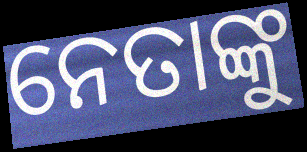
ନେତାଙ୍କୁ